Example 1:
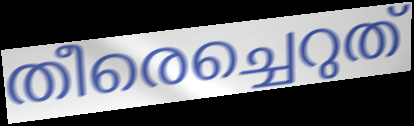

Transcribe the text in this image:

തീരെച്ചെറുത്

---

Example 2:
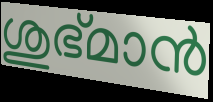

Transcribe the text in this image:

ശുഭ്മാൻ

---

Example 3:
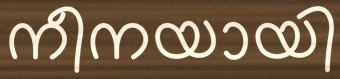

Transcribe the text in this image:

നീനയായി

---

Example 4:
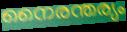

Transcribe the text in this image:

നൈരന്തര്യം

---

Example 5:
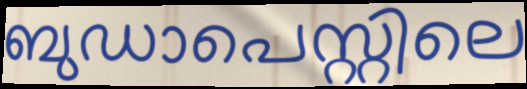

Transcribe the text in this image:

ബുഡാപെസ്റ്റിലെ